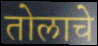
तोलाचे